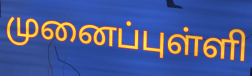
முனைப்புள்ளி